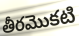
తీరమొకటి